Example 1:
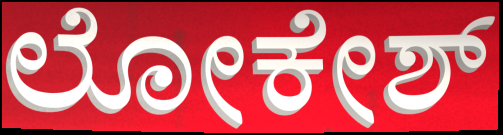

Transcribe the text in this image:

ಲೋಕೇಶ್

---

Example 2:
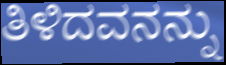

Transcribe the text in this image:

ತಿಳಿದವನನ್ನು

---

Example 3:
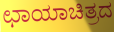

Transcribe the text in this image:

ಛಾಯಾಚಿತ್ರದ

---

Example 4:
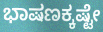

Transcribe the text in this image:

ಭಾಷಣಕ್ಕಷ್ಟೇ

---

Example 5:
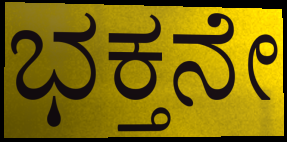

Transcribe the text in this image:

ಭಕ್ತನೇ